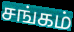
சங்கம்